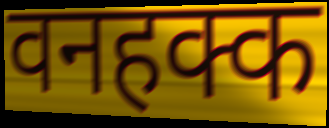
वनहक्क